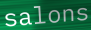
salons